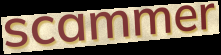
scammer